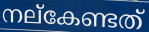
നല്കേണ്ടത്